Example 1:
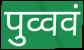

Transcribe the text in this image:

पुव्ववं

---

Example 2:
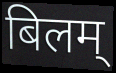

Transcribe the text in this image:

बिलम्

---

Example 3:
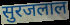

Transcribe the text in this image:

सुरजलाल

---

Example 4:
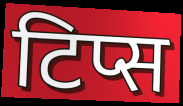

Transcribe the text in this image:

टिप्‍स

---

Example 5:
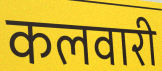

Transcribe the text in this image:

कलवारी